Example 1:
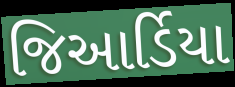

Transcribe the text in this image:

જિઆર્ડિયા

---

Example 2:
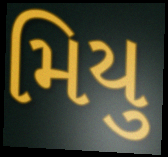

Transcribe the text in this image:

મિયુ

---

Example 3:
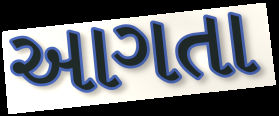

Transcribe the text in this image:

આગતા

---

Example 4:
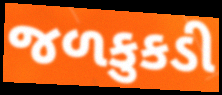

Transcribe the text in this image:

જળકુકડી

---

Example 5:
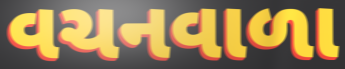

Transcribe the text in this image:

વચનવાળા